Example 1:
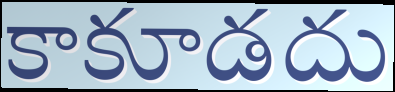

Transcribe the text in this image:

కాకూడదు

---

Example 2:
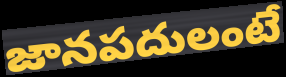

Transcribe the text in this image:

జానపదులంటే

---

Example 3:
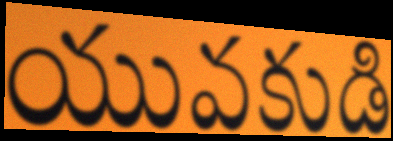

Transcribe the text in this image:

యువకుడి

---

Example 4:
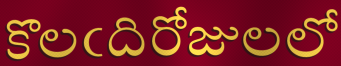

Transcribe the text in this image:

కొలఁదిరోజులలో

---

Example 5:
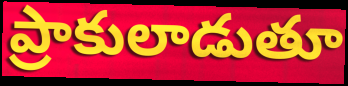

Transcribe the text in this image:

ప్రాకులాడుతూ